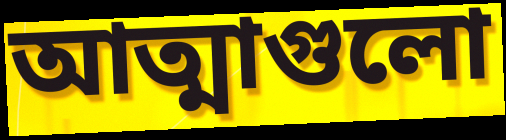
আত্মাগুলো